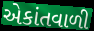
એકાંતવાળી